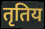
तृतिय